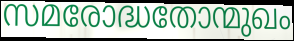
സമരോദ്ധതോന്മുഖം